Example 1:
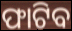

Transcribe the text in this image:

ଫାଟିବ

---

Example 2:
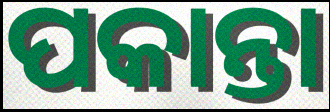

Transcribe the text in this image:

ପକାନ୍ତା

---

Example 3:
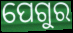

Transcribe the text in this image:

ପେଗୁର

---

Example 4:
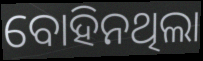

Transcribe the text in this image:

ବୋହିନଥିଲା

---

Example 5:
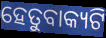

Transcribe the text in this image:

ହେତୁବାକ୍ୟଟି